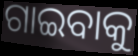
ଗାଇବାକୁ